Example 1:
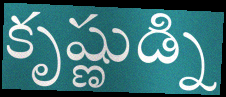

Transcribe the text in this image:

కృష్ణుడ్ని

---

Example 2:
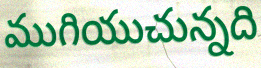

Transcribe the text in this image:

ముగియుచున్నది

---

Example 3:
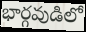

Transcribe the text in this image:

భార్గవుడిలో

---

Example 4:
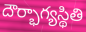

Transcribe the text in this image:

దౌర్భాగ్యస్థితి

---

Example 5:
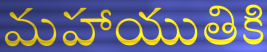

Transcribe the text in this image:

మహాయుతికి